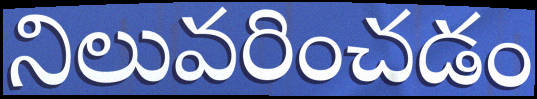
నిలువరించడం